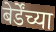
बेर्डेंच्या